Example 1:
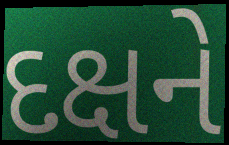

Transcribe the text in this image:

દક્ષને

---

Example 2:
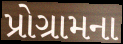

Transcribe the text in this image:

પ્રોગ્રામના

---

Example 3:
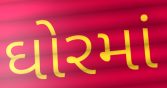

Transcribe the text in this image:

ઘોરમાં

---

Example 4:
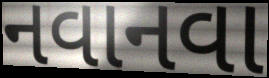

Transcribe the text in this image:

નવાનવા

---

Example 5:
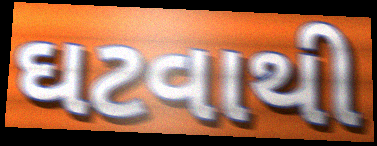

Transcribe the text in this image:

ઘટવાથી